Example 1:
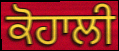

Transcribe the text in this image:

ਕੋਹਾਲੀ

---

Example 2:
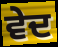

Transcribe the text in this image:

ਵੇਦ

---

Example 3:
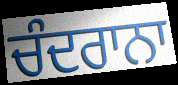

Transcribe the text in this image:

ਚੰਦਰਾਨਾ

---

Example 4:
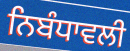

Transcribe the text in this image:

ਨਿਬੰਧਾਵਲੀ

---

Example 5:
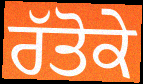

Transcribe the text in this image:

ਰੱਤੋਕੇ